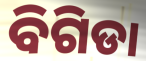
ବିଗିଡା